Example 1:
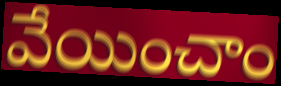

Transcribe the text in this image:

వేయించాం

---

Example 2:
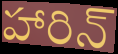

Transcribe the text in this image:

హారిన్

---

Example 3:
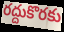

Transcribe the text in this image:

రద్దుకొరకు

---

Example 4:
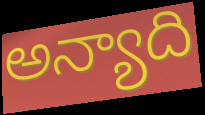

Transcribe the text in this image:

అన్యాది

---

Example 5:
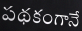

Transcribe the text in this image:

పథకంగానే